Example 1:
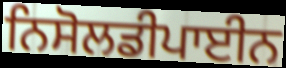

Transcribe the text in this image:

ਨਿਸੋਲਡੀਪਾਈਨ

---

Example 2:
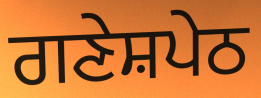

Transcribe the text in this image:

ਗਣੇਸ਼ਪੇਠ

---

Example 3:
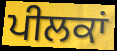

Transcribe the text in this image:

ਪੀਲਕਾਂ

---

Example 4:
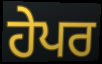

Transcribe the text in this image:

ਹੇਪਰ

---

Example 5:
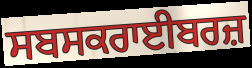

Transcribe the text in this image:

ਸਬਸਕਰਾਈਬਰਜ਼